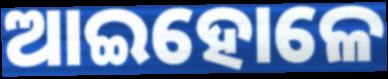
ଆଇହୋଳେ